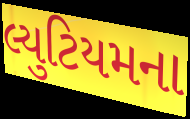
લ્યુટિયમના